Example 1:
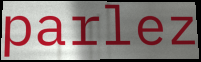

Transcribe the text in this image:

parlez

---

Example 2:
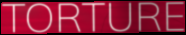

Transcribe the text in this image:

TORTURE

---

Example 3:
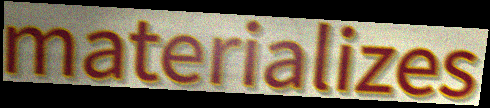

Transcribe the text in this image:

materializes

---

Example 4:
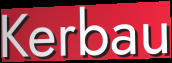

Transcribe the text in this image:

Kerbau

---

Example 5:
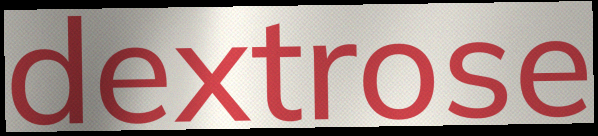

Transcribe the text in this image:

dextrose